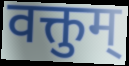
वक्तुम्